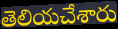
తెలియచేశారు